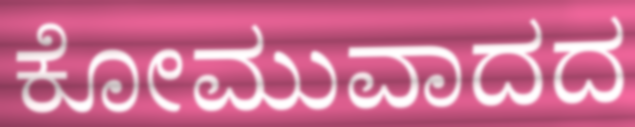
ಕೋಮುವಾದದ